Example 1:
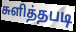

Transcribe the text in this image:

சுளித்தபடி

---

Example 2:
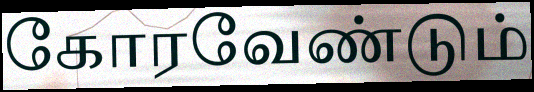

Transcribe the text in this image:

கோரவேண்டும்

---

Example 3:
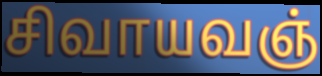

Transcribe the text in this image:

சிவாயவஞ்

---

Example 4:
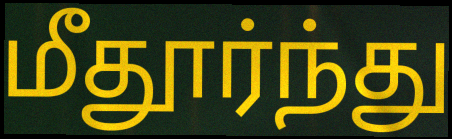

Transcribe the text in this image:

மீதூர்ந்து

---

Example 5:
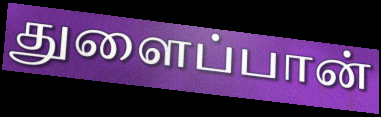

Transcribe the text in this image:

துளைப்பான்